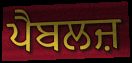
ਪੈਬਲਜ਼